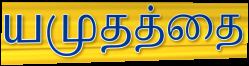
யமுதத்தை